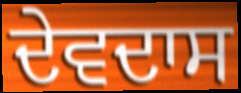
ਦੇਵਦਾਸ